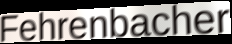
Fehrenbacher